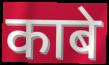
काबे